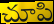
చూపి